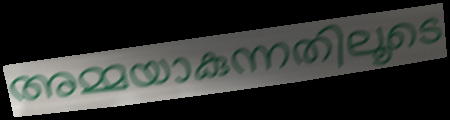
അമ്മയാകുന്നതിലൂടെ